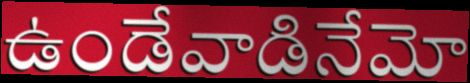
ఉండేవాడినేమో